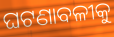
ଘଟଣାବଳୀକୁ